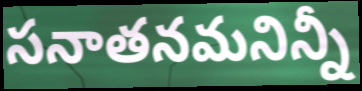
సనాతనమనిన్నీ